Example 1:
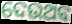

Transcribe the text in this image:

ଦେଉଥବ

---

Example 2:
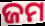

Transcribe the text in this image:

ଜମ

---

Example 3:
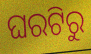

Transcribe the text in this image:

ଘରଟିରୁ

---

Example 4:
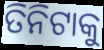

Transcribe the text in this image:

ତିନିଟାକୁ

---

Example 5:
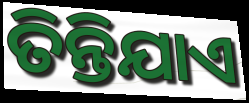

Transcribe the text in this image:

ତିନ୍ତିଯାଏ